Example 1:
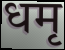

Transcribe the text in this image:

धमृ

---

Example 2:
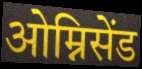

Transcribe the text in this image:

ओम्निसेंड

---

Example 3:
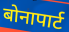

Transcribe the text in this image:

बोनापार्ट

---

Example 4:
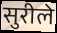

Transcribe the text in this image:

सुरीले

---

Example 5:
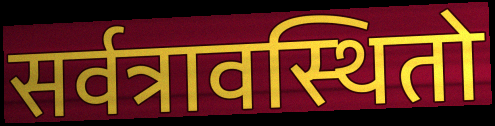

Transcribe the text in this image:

सर्वत्रावस्थितो